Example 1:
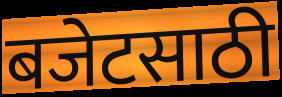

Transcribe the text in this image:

बजेटसाठी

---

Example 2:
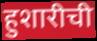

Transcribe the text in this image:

हुशारीची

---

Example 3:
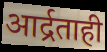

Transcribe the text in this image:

आर्द्रताही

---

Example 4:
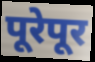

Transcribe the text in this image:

पूरेपूर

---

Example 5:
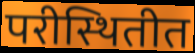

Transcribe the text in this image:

परीस्थितीत